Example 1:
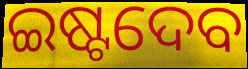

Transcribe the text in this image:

ଇଷ୍ଟଦେବ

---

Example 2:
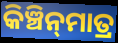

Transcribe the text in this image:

କିଞ୍ଚିନ୍‍ମାତ୍ର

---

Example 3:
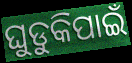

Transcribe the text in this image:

ଘୁଡୁକିପାଇଁ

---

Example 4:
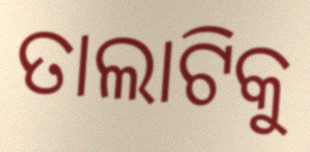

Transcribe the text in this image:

ତାଲାଟିକୁ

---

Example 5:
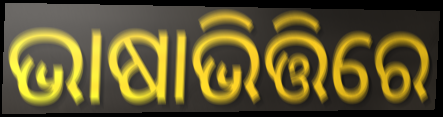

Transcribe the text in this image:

ଭାଷାଭିତ୍ତିରେ